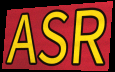
ASR